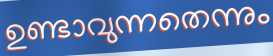
ഉണ്ടാവുന്നതെന്നും